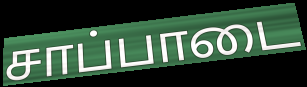
சாப்பாடை